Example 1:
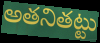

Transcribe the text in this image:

అతనితట్టు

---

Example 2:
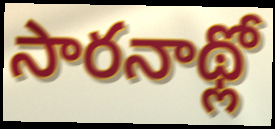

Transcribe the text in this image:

సారనాథ్లో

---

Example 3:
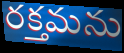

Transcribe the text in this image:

రక్తమను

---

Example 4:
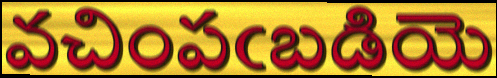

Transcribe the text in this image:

వచింపఁబడియె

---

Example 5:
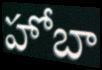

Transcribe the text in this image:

హోబా